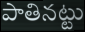
పాతినట్టు